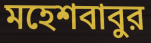
মহেশবাবুর